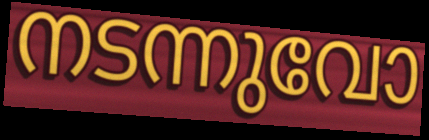
നടന്നുവോ